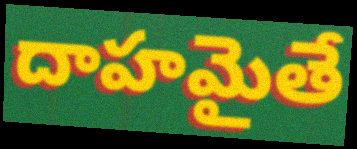
దాహమైతే